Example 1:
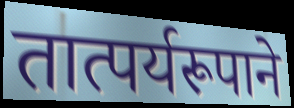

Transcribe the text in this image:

तात्पर्यरूपाने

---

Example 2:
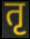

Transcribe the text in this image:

तृ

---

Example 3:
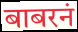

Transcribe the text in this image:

बाबरनं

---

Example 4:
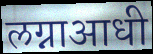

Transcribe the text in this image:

लग्नाआधी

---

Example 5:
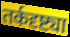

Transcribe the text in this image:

तर्कदृष्ट्या